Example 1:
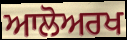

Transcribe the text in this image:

ਆਲੋਅਰਖ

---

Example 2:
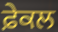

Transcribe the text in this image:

ਫ਼ੇਕਲ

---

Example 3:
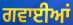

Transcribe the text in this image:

ਗਵਾਈਆਂ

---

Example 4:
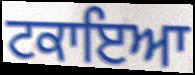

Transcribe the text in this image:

ਟਕਾਇਆ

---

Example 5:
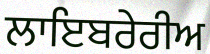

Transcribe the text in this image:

ਲਾਇਬਰੇਰੀਅ